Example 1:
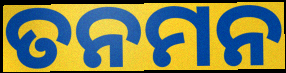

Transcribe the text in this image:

ତନମନ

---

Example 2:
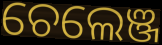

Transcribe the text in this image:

ଚେଲେଞ୍ଜ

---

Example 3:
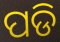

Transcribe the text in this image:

ପଡି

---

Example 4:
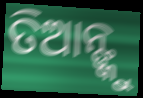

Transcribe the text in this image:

ତିଆନ୍ଙ୍କୁ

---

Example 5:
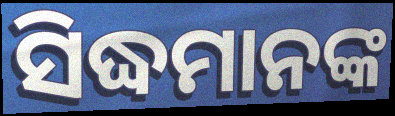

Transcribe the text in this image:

ସିଦ୍ଧମାନଙ୍କ